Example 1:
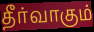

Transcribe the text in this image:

தீர்வாகும்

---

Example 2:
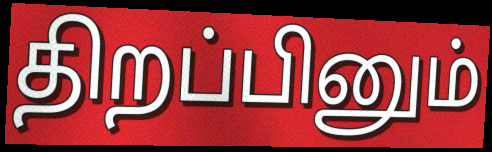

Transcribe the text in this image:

திறப்பினும்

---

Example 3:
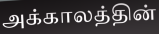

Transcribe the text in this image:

அக்காலத்தின்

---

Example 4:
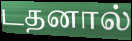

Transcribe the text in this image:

டதனால்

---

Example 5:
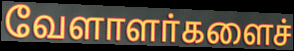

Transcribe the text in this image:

வேளாளர்களைச்